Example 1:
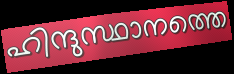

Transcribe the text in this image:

ഹിന്ദുസ്ഥാനത്തെ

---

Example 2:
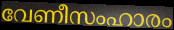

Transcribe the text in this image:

വേണീസംഹാരം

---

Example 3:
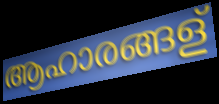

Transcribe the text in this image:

ആഹാരങ്ങള്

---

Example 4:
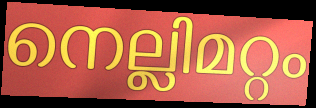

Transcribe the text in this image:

നെല്ലിമറ്റം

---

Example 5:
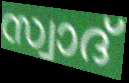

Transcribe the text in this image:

സ്വാദ്